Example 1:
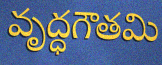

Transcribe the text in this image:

వృద్ధగౌతమి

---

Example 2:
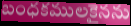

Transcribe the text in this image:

బంధకములకైనను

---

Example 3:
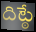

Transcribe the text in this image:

దిట్ఠే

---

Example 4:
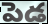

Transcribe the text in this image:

పెడ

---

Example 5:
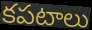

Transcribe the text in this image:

కపటాలు